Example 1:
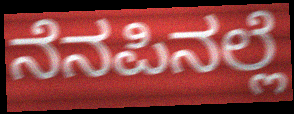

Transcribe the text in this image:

ನೆನಪಿನಲ್ಲೆ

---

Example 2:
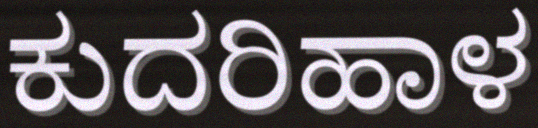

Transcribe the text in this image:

ಕುದರಿಹಾಳ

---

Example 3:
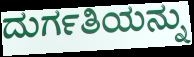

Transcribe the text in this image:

ದುರ್ಗತಿಯನ್ನು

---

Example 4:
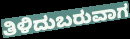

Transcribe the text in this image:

ತಿಳಿದುಬರುವಾಗ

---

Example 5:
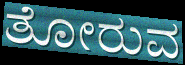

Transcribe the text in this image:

ತೋರುವ